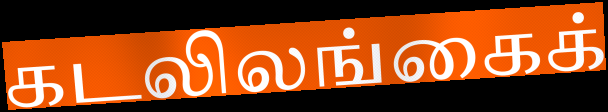
கடலிலங்கைக்